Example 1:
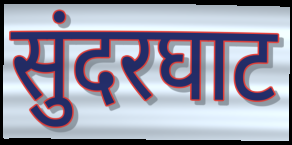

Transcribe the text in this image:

सुंदरघाट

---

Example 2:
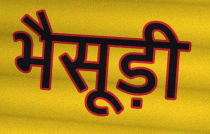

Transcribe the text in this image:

भैसूड़ी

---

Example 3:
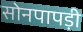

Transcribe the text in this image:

सोनपापड़ी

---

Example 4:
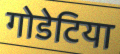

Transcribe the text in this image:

गोडेटिया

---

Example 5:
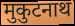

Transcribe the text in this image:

मुकुटनाथ